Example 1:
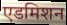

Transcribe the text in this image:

एडमिशन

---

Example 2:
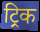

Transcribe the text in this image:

ट्रिक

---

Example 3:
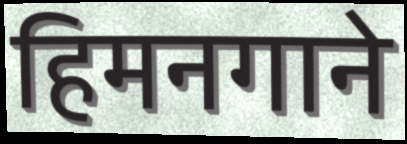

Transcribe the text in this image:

हिमनगाने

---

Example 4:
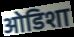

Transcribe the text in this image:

ओडिशा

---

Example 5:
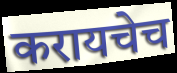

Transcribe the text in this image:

करायचेच